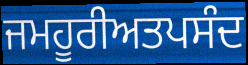
ਜਮਹੂਰੀਅਤਪਸੰਦ